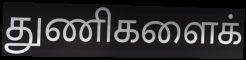
துணிகளைக்